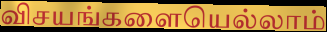
விசயங்களையெல்லாம்